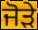
ਜੋੜੇ